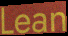
Lean